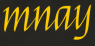
mnay